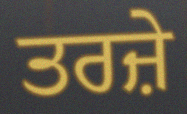
ਤਰਜ਼ੇ